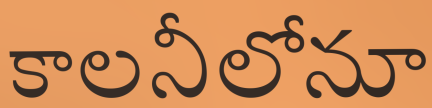
కాలనీలోనూ